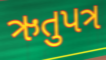
ઋતુપત્ર